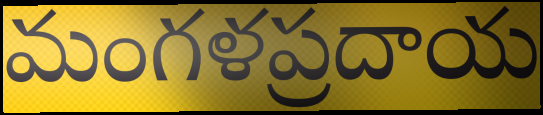
మంగళప్రదాయ